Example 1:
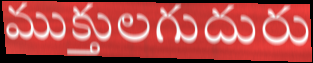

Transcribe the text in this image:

ముక్తులగుదురు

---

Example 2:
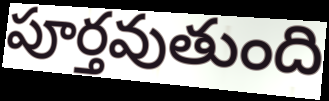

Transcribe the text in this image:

పూర్తవుతుంది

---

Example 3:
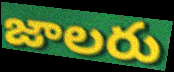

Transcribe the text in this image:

జాలరు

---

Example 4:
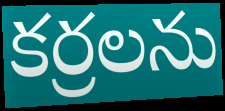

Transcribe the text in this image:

కర్రలను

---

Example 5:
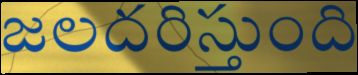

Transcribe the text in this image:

జలదరిస్తుంది